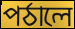
পঠালে